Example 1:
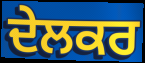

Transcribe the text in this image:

ਦੇਲਕਰ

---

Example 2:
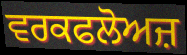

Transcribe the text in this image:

ਵਰਕਫਲੋਅਜ਼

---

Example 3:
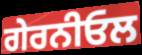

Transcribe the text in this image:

ਗੇਰਨੀਓਲ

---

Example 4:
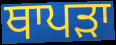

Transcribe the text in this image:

ਥਾਪੜਾ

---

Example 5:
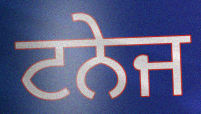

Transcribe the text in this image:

ਟਨੇਜ